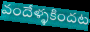
వందేళ్ళకిందట